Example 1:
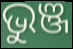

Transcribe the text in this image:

ଭୁଞ୍ଜ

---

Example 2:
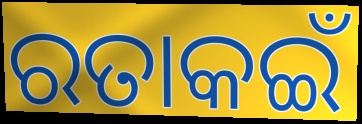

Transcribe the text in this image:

ରତାକଇଁ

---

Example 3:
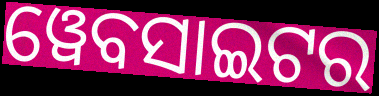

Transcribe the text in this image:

ୱେବସାଇଟର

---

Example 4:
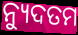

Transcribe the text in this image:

ନ୍ୟୁଦତମ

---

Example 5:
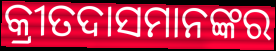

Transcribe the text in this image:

କ୍ରୀତଦାସମାନଙ୍କର